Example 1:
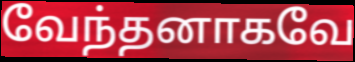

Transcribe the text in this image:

வேந்தனாகவே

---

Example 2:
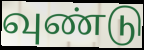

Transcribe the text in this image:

வுண்டு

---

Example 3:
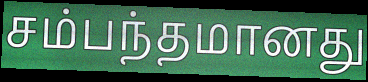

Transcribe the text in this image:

சம்பந்தமானது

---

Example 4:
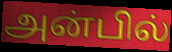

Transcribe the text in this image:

அன்பில்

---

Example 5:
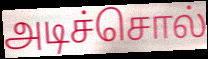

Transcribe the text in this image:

அடிச்சொல்